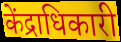
केंद्राधिकारी